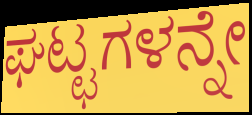
ಘಟ್ಟಗಳನ್ನೇ